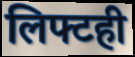
लिफ्टही